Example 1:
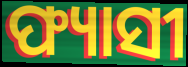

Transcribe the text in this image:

ଫ୍ୟାସୀ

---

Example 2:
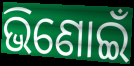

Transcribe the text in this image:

ଭିଣୋଇଁ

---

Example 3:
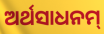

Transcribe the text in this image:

ଅର୍ଥସାଧନମ୍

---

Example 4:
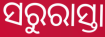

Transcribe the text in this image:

ସରୁରାସ୍ତା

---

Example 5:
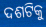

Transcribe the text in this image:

ଦଶଟିକୁ